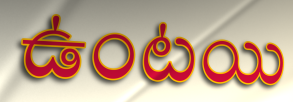
ఉంటయి